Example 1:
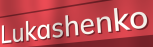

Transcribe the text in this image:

Lukashenko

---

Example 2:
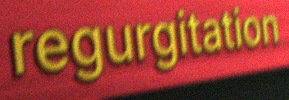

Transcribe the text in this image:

regurgitation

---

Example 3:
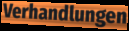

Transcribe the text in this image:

Verhandlungen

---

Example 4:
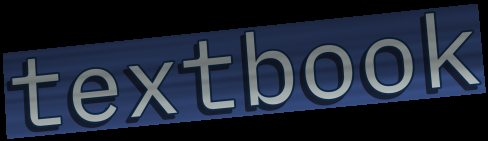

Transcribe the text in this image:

textbook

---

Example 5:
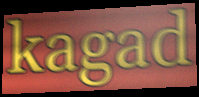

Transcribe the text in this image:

kagad